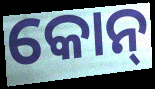
କୋନ୍